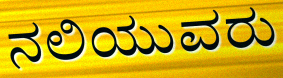
ನಲಿಯುವರು